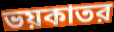
ভয়কাতর